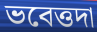
ভবেত্তদা